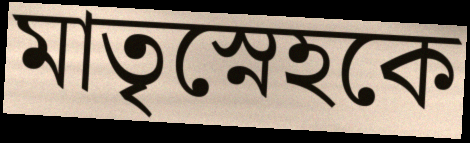
মাতৃস্নেহকে